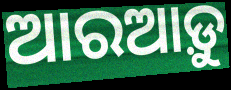
ଆରଆଡ଼ୁ